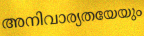
അനിവാര്യതയേയും